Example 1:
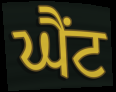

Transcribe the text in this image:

ਘੈਂਟ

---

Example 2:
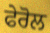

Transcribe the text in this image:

ਫੇਰੋਲ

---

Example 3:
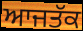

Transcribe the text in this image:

ਆਜਤੱਕ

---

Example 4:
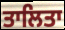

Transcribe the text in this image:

ਤਾਲਿਤਾ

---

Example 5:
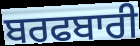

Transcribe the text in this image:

ਬਰਫਬਾਰੀ